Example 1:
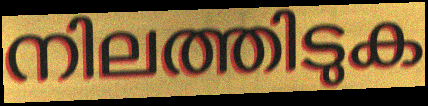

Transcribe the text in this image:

നിലത്തിടുക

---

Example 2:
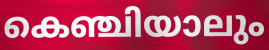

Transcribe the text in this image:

കെഞ്ചിയാലും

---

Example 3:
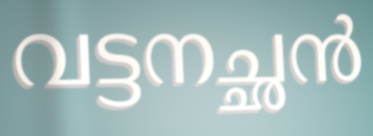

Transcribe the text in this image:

വട്ടനച്ഛൻ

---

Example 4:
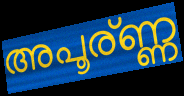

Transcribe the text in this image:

അപൂര്ണ്ണ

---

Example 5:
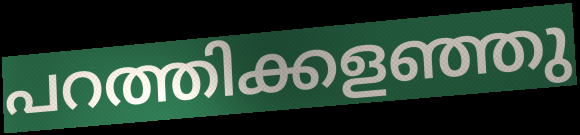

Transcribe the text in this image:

പറത്തിക്കളഞ്ഞു